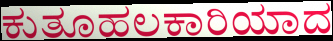
ಕುತೂಹಲಕಾರಿಯಾದ